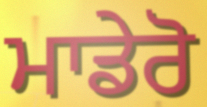
ਮਾਡੇਰੋ